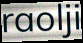
raolji